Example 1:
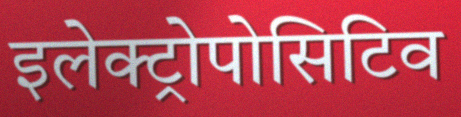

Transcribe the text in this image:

इलेक्ट्रोपोसिटिव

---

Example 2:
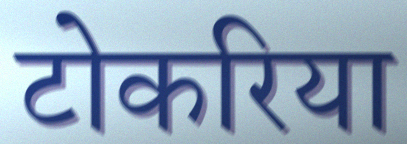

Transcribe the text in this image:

टोकरिया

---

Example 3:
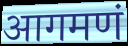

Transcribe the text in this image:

आगमणं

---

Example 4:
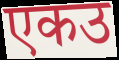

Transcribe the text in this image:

एकउ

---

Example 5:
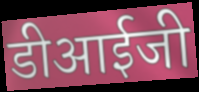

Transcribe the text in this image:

डीआईजी